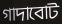
গাদাবোট